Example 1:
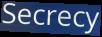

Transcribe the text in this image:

Secrecy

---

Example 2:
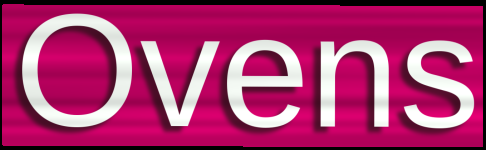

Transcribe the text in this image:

Ovens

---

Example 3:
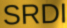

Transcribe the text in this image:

SRDI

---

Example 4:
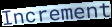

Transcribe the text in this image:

Increment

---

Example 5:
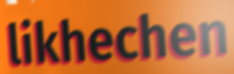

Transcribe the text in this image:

likhechen